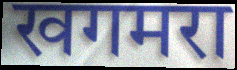
खगमरा